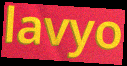
lavyo